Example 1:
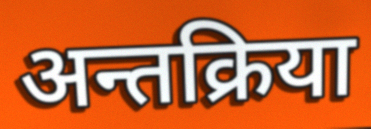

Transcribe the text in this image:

अन्तक्रिया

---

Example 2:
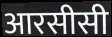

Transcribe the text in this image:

आरसीसी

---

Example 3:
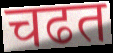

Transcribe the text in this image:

चढत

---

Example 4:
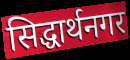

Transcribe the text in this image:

सिद्धार्थनगर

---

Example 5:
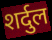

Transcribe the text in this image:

शर्दुल